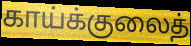
காய்க்குலைத்